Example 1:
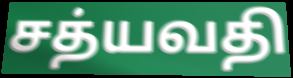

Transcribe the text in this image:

சத்யவதி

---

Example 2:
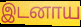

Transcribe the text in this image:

இடனாய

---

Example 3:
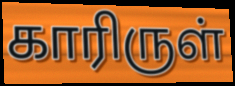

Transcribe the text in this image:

காரிருள்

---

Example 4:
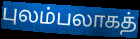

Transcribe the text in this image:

புலம்பலாகத்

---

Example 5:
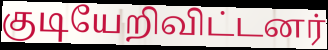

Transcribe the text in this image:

குடியேறிவிட்டனர்